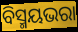
ବିସ୍ମୟଭରା